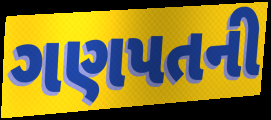
ગણપતની